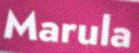
Marula